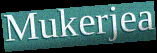
Mukerjea